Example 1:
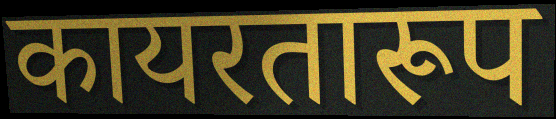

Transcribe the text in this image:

कायरतारूप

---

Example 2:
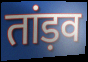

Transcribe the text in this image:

तांड़व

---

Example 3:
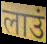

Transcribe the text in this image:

लाउं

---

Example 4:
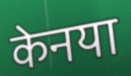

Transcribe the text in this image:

केनया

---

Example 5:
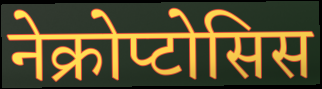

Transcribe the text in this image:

नेक्रोप्टोसिस